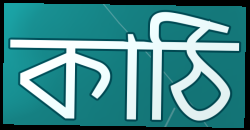
কাঠি